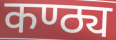
कण्ठ्य